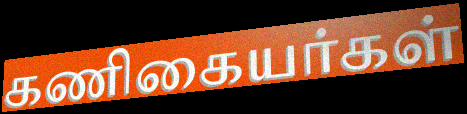
கணிகையர்கள்